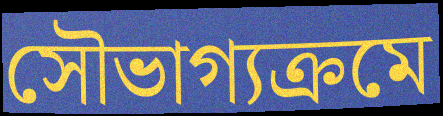
সৌভাগ্যক্রমে